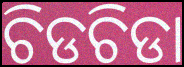
ଚିଡଚିଡା